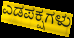
ಎಡಪಕ್ಷಗಳು